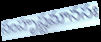
సంహృష్టమానసః